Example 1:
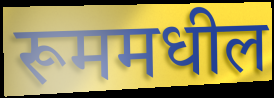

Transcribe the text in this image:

रूममधील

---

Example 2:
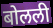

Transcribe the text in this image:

बोलली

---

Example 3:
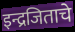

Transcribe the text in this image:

इन्द्रजिताचे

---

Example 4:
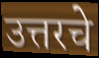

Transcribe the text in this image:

उत्तरचे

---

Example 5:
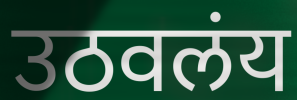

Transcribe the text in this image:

उठवलंय